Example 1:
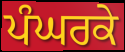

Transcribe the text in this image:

ਪੰਘਰਕੇ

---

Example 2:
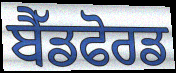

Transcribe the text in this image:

ਬੈੱਡਫੋਰਡ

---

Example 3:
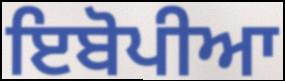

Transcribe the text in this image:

ਇਬੋਪੀਆ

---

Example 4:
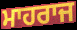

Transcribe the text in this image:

ਮਾਹਰਾਜ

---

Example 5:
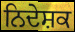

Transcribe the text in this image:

ਨਿਦੇਸ਼ਕ